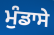
ਮੁੰਡਾਸੇ